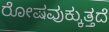
ರೋಷವುಕ್ಕುತ್ತದೆ